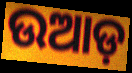
ଉଆଡ଼